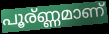
പൂര്ണ്ണമാണ്